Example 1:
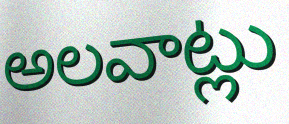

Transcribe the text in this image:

అలవాట్లు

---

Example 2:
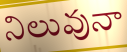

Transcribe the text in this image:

నిలువునా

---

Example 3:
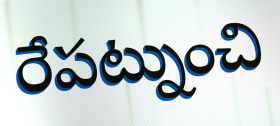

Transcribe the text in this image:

రేపట్నుంచి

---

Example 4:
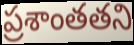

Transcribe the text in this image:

ప్రశాంతతని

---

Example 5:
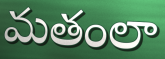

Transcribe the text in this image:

మతంలా